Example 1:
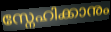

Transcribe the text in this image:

സ്നേഹിക്കാനും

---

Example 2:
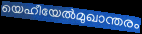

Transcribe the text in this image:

യെഹീയേൽമുഖാന്തരം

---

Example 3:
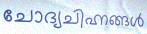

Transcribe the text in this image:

ചോദ്യചിഹ്നങ്ങൾ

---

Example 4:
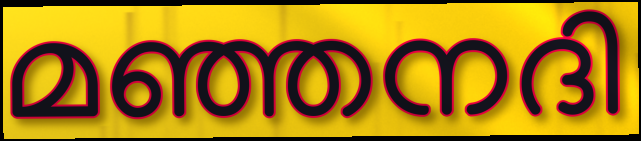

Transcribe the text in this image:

മഞ്ഞനദി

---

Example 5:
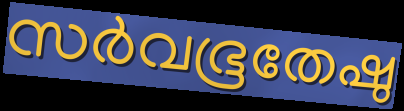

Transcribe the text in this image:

സർവഭൂതേഷു